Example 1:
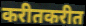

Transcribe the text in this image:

करीतकरीत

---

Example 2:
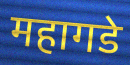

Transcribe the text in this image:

महागडे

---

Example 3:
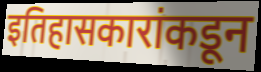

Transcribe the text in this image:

इतिहासकारांकडून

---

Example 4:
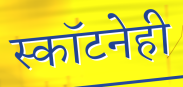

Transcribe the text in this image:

स्कॉटनेही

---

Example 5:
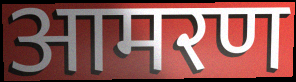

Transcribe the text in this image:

आमरण